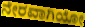
ನೇರವಾಗಿಯೋ